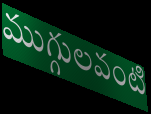
ముగ్గులవంటి